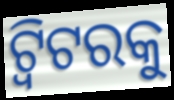
ଟ୍ୱିଟରକୁ